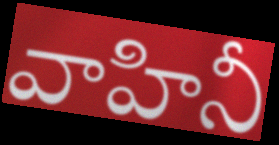
వాహినీ